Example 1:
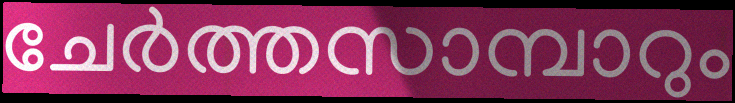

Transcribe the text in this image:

ചേർത്തസാമ്പാറും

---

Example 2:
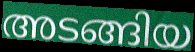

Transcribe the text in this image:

അടങ്ങിയ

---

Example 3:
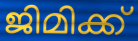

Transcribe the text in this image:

ജിമിക്ക്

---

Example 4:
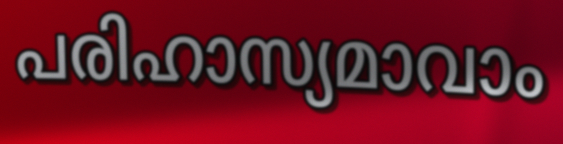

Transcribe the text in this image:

പരിഹാസ്യമാവാം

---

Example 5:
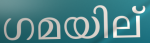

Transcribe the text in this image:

ഗമയില്